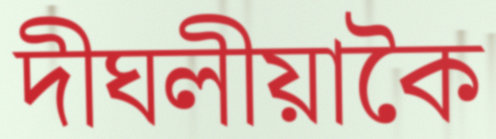
দীঘলীয়াকৈ